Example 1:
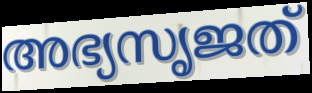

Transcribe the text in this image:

അഭ്യസൃജത്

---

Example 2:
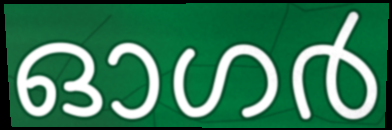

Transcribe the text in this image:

ഓഗർ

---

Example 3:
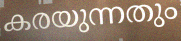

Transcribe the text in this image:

കരയുന്നതും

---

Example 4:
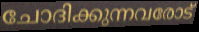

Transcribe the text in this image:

ചോദിക്കുന്നവരോട്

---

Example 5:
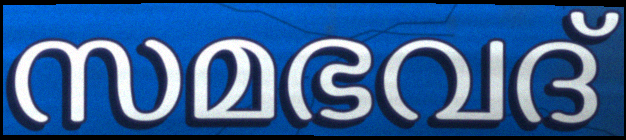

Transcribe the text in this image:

സമഭവദ്